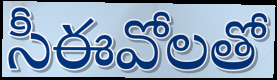
సీఈవోలతో